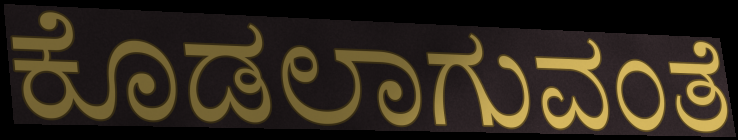
ಕೊಡಲಾಗುವಂತೆ